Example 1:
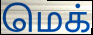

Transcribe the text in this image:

மெக்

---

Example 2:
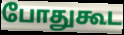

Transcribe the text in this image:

போதுகூட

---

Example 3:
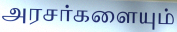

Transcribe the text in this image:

அரசர்களையும்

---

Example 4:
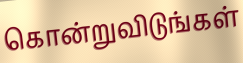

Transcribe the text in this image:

கொன்றுவிடுங்கள்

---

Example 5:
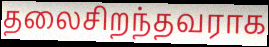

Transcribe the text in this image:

தலைசிறந்தவராக